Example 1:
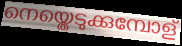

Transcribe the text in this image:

നെയ്തെടുക്കുമ്പോള്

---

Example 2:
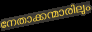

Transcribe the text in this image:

നേതാക്കന്മാരിലും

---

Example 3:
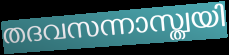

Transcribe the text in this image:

തദവസന്നാസ്ത്വയി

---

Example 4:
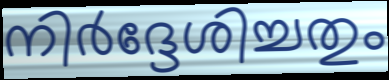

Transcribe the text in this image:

നിർദ്ദേശിച്ചതും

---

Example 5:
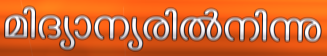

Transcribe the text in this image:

മിദ്യാന്യരിൽനിന്നു